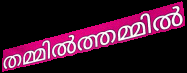
തമ്മിൽത്തമ്മിൽ